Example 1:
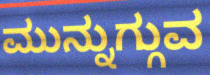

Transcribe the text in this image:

ಮುನ್ನುಗ್ಗುವ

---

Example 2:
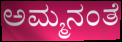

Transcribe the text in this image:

ಅಮ್ಮನಂತೆ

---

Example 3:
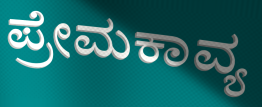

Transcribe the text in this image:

ಪ್ರೇಮಕಾವ್ಯ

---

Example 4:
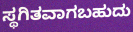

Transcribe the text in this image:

ಸ್ಥಗಿತವಾಗಬಹುದು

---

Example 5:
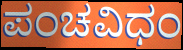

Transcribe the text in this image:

ಪಂಚವಿಧಂ